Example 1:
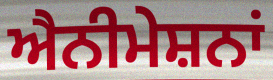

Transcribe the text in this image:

ਐਨੀਮੇਸ਼ਨਾਂ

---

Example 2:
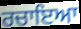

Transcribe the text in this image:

ਰਚਾਇਆ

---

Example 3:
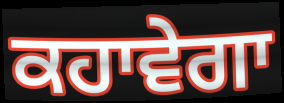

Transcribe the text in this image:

ਕਹਾਵੇਗਾ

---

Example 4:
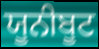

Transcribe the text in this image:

ਯੂਨੀਬੂਟ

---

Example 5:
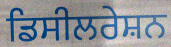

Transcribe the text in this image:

ਡਿਸੀਲਰੇਸ਼ਨ